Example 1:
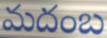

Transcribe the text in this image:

మదంబ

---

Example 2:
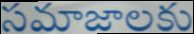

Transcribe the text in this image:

సమాజాలకు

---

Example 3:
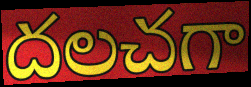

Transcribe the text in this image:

దలచగా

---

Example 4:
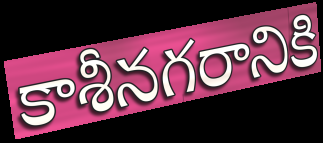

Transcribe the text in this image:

కాశీనగరానికి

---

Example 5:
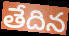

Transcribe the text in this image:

తేదిన